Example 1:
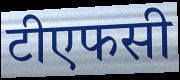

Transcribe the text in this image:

टीएफसी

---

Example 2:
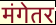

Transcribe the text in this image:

मंगेतर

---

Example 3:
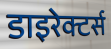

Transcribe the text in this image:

डाइरेक्टर्स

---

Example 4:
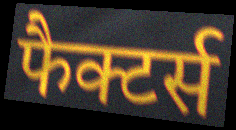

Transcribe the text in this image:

फैक्टर्स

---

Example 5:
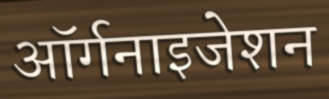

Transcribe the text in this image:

ऑर्गनाइजेशन